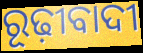
ରୂଢ଼ୀବାଦୀ